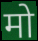
मो